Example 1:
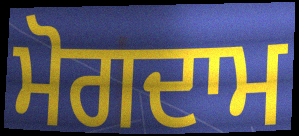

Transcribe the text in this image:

ਮੋਗਦਾਮ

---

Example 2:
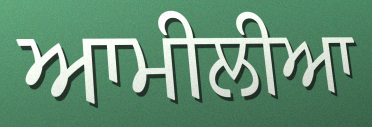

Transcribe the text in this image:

ਆਮੀਲੀਆ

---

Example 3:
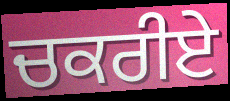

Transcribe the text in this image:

ਚਕਰੀਏ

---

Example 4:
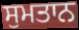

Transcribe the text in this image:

ਸੁਮਤਾਨ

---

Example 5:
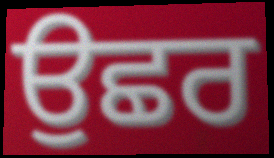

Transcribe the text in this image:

ਉਛਰ